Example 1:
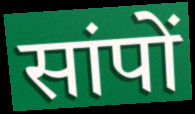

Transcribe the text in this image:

सांपों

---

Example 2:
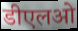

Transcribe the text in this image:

डीएलओ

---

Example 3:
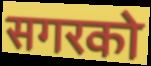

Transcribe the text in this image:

सगरको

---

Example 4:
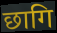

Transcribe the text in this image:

छागि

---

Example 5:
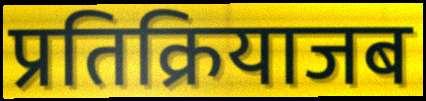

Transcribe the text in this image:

प्रतिक्रियाजब